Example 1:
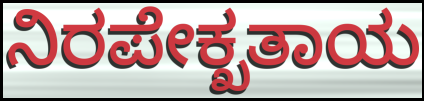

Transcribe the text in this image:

ನಿರಪೇಕ್ಖತಾಯ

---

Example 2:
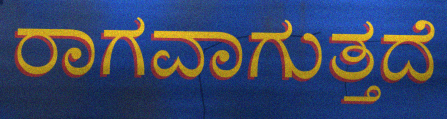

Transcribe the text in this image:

ರಾಗವಾಗುತ್ತದೆ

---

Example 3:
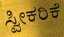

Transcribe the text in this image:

ಸ್ವೀಕರಿಕೆ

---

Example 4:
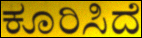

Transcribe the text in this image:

ಕೂರಿಸಿದೆ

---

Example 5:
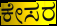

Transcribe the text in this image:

ಕೇಸರ